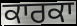
ਕਾਰਕਾ